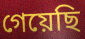
গেয়েছি